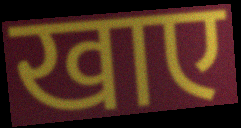
खाए